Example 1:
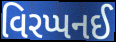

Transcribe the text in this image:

વિરપ્પનઈ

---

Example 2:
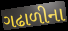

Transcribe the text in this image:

ગઢાળીના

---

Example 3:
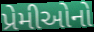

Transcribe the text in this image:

પ્રેમીઓનો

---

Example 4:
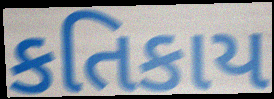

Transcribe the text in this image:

કતિકાય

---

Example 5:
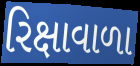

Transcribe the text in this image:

રિક્ષાવાળા